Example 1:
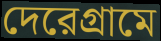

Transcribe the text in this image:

দেরেগ্রামে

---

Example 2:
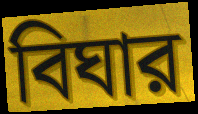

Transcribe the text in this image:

বিঘার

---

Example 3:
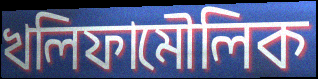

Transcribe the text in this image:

খলিফামৌলিক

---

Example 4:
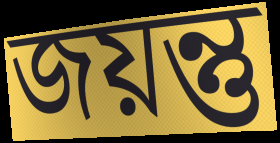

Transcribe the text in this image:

জয়ন্তু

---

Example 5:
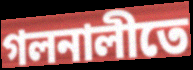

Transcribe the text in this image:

গলনালীতে